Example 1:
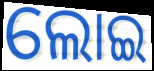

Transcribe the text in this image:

ଲୋଇ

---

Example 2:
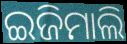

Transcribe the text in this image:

ଇଜିମାଲି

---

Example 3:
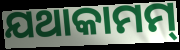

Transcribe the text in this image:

ଯଥାକାମମ୍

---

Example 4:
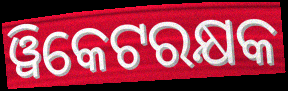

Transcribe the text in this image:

ୱିକେଟରକ୍ଷକ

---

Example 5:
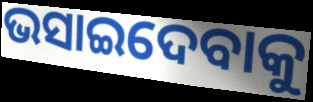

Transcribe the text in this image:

ଭସାଇଦେବାକୁ